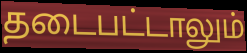
தடைபட்டாலும்